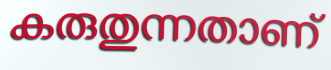
കരുതുന്നതാണ്